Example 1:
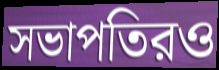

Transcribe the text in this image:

সভাপতিরও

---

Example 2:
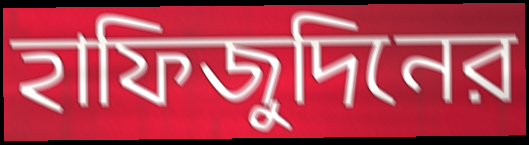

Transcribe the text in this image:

হাফিজুদিনের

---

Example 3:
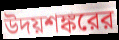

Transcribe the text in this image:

উদয়শঙ্করের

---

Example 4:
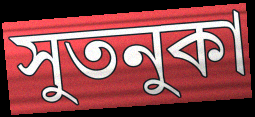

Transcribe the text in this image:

সুতনুকা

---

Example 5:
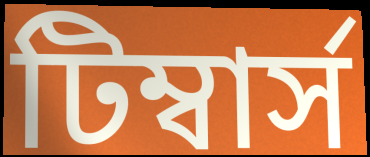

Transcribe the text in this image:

টিম্বার্স